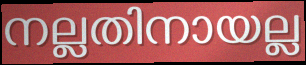
നല്ലതിനായല്ല